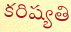
కరిష్యతి